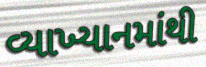
વ્યાખ્યાનમાંથી